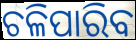
ଚଳିପାରିବ